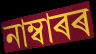
নাম্বাৰৰ